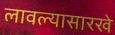
लावल्यासारखे